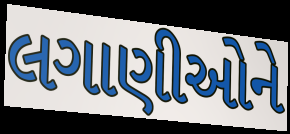
લગાણીઓને